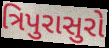
ત્રિપુરાસુરો